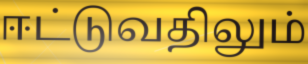
ஈட்டுவதிலும்